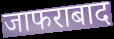
जाफराबाद